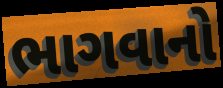
ભાગવાનો